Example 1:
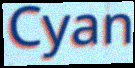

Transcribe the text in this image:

Cyan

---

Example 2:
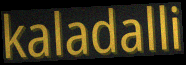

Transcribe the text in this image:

kaladalli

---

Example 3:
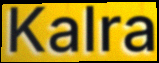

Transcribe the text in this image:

Kalra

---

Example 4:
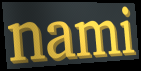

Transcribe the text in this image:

nami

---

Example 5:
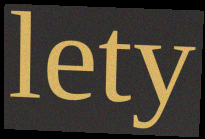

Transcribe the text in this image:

lety